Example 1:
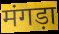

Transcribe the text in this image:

मंगड़ा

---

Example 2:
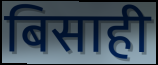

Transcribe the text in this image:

बिसाही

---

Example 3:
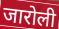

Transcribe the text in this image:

जारोली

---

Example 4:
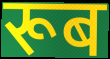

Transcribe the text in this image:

रूब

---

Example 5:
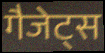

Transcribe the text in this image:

गैजेट्स